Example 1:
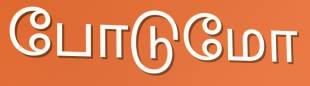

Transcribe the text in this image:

போடுமோ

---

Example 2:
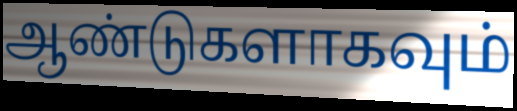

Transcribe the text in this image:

ஆண்டுகளாகவும்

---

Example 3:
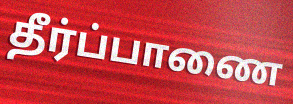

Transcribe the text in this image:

தீர்ப்பாணை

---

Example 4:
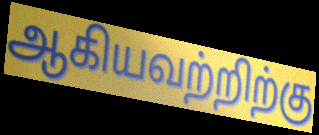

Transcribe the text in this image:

ஆகியவற்றிற்கு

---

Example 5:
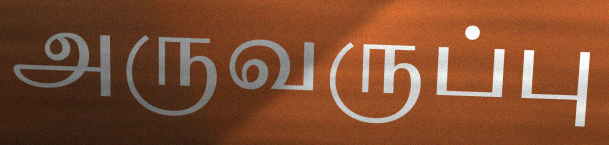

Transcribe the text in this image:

அருவருப்பு